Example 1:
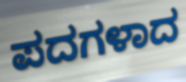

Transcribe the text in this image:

ಪದಗಳಾದ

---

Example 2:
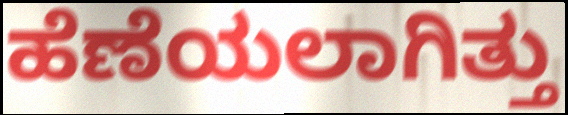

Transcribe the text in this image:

ಹೆಣೆಯಲಾಗಿತ್ತು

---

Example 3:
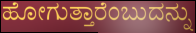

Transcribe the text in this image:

ಹೋಗುತ್ತಾರೆಂಬುದನ್ನು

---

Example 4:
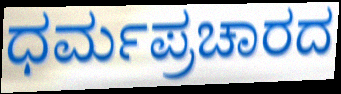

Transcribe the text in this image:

ಧರ್ಮಪ್ರಚಾರದ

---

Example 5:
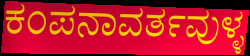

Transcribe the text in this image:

ಕಂಪನಾವರ್ತವುಳ್ಳ